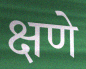
क्षणे